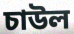
চাউল